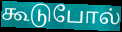
கூடுபோல்